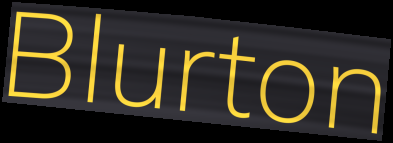
Blurton